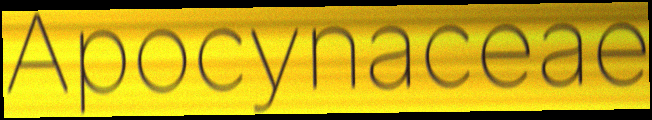
Apocynaceae